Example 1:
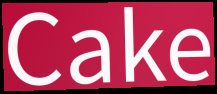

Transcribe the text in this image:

Cake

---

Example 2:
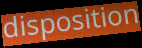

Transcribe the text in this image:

disposition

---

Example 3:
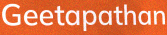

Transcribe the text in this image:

Geetapathan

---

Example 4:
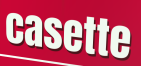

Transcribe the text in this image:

casette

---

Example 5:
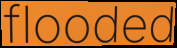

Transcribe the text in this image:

flooded